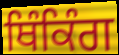
ਥਿੰਕਿੰਗ